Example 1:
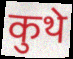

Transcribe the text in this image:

कुथे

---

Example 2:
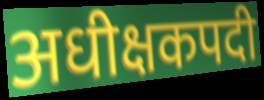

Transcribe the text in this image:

अधीक्षकपदी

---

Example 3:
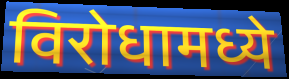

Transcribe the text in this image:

विरोधामध्ये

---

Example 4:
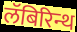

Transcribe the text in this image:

लॅबिरिन्थ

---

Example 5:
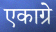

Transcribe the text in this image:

एकाग्रे